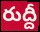
రుద్దీ